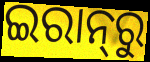
ଇରାନ୍‌ରୁ